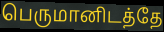
பெருமானிடத்தே